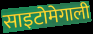
साइटोमेगाली